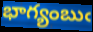
భాగ్యంబుఁ